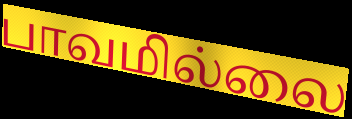
பாவமில்லை